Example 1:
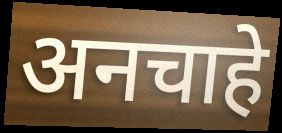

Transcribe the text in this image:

अनचाहे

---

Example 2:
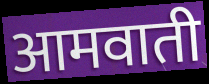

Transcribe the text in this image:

आमवाती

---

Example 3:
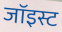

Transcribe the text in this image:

जॉइस्ट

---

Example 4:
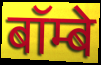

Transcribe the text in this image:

बॉम्‍बे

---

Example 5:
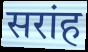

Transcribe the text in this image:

सरांह